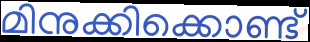
മിനുക്കിക്കൊണ്ട്